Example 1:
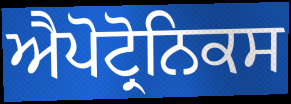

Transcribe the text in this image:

ਐਪੋਟ੍ਰੋਨਿਕਸ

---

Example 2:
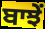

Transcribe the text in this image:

ਬਾਝੇਂ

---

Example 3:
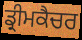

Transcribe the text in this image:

ਡ੍ਰੀਮਕੈਚਰ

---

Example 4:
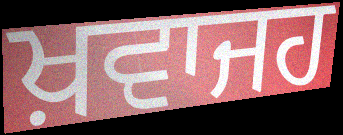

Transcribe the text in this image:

ਖ਼ਵਾਜਹ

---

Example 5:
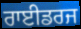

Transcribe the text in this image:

ਰਾਈਡਰਜ